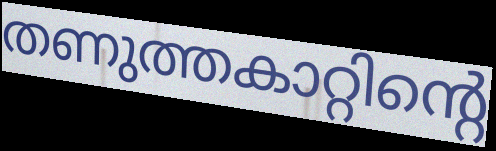
തണുത്തകാറ്റിന്റെ